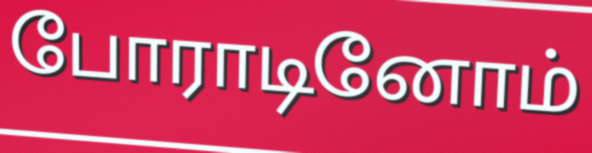
போராடினோம்